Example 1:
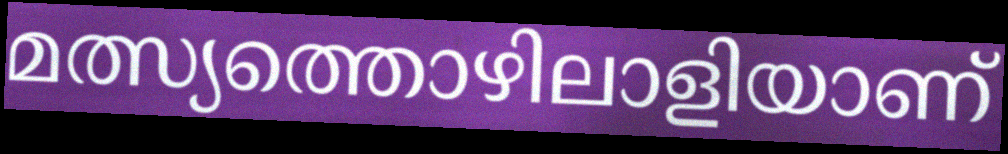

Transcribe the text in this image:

മത്സ്യത്തൊഴിലാളിയാണ്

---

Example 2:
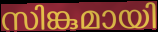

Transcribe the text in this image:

സിങ്കുമായി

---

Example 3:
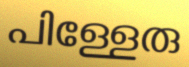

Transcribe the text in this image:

പിള്ളേരു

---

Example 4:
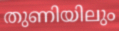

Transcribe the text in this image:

തുണിയിലും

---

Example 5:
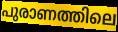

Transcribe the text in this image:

പുരാണത്തിലെ